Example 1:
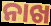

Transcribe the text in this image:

ନାଖ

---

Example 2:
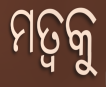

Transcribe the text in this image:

ମତ୍ୱକୁ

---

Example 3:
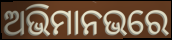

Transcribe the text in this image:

ଅଭିମାନଭରେ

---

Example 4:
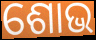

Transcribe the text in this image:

ଶୋଭ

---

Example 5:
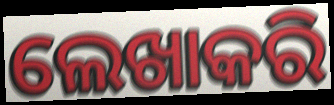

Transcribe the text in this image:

ଲେଖାକରି